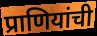
प्राणियांची